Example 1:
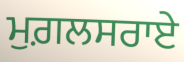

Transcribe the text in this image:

ਮੁਗ਼ਲਸਰਾਏ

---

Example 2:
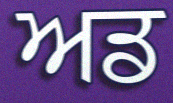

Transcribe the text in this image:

ਅਡ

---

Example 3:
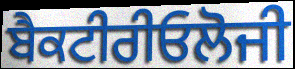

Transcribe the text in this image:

ਬੈਕਟੀਰੀਓਲੋਜੀ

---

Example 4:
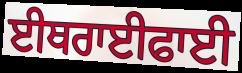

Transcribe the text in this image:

ਈਥਰਾਈਫਾਈ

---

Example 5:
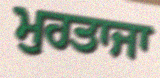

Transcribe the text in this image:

ਮੁਹਤਾਜਾ